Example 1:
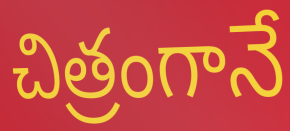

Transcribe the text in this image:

చిత్రంగానే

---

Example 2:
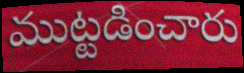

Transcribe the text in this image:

ముట్టడించారు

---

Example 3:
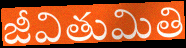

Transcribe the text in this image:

జీవితుమితి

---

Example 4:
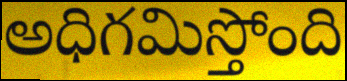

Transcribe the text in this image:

అధిగమిస్తోంది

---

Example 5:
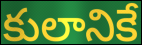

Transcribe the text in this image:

కులానికే